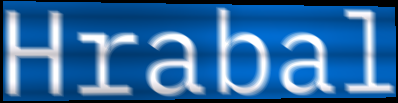
Hrabal